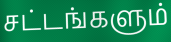
சட்டங்களும்